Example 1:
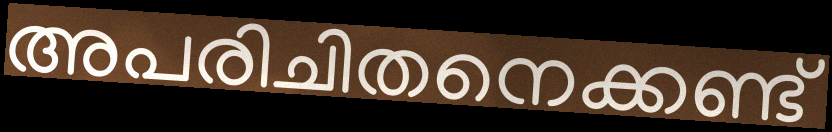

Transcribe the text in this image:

അപരിചിതനെക്കണ്ട്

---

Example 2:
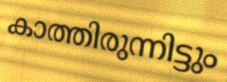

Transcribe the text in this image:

കാത്തിരുന്നിട്ടും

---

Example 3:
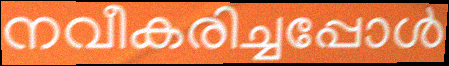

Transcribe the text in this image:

നവീകരിച്ചപ്പോൾ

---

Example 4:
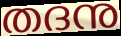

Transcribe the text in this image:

തദനു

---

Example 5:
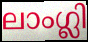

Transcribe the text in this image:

ലാംഗ്ലി